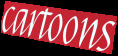
cartoons